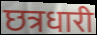
छत्रधारी